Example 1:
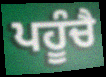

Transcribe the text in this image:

ਪਹੂੰਚੈ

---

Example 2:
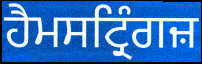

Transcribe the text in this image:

ਹੈਮਸਟ੍ਰਿੰਗਜ਼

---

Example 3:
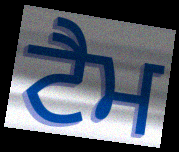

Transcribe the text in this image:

ਟੈਮ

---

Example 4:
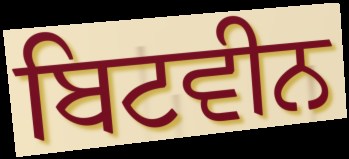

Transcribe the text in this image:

ਬਿਟਵੀਨ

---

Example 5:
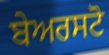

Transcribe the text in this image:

ਬੇਅਰਸਟੋ